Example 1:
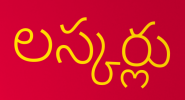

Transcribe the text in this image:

లస్కర్లు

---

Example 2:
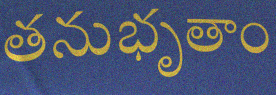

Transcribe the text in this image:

తనుభృతాం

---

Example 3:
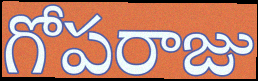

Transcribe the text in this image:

గోపరాజు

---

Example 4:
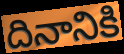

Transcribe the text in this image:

దినానికి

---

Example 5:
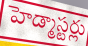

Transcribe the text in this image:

హెడ్మాస్టర్లు